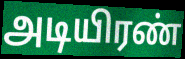
அடியிரண்